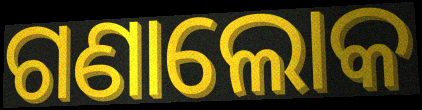
ଗଣାଲୋକ